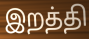
இறத்தி